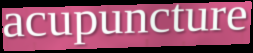
acupuncture